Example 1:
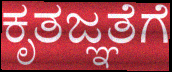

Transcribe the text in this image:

ಕೃತಜ್ಞತೆಗೆ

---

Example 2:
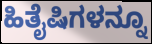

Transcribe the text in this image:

ಹಿತೈಷಿಗಳನ್ನೂ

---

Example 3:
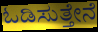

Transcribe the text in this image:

ಓಡಿಸುತ್ತೇನೆ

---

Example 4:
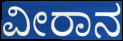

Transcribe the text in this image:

ವೀರಾನ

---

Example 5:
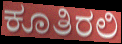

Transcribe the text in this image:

ಕೂತಿರಲಿ